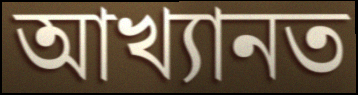
আখ্যানত